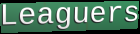
Leaguers